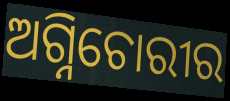
ଅଗ୍ନିଚୋରୀର